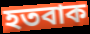
হতবাক